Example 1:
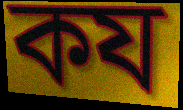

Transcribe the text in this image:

কয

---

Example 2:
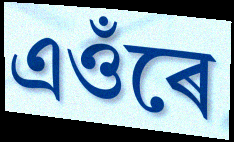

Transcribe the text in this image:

এওঁৰে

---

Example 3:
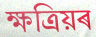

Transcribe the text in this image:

ক্ষত্ৰিয়ৰ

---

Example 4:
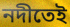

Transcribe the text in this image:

নদীতেই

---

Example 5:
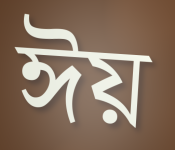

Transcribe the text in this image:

ঈয়